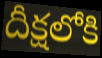
దీక్షలోకి